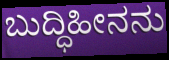
ಬುದ್ಧಿಹೀನನು